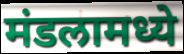
मंडलामध्ये